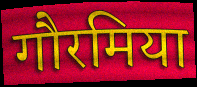
गौरमिया